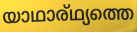
യാഥാര്ഥ്യത്തെ